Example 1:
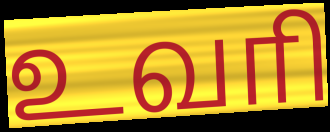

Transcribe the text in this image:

உவரி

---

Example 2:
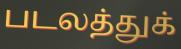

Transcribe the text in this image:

படலத்துக்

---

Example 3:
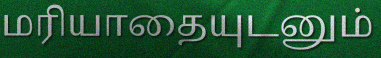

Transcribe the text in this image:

மரியாதையுடனும்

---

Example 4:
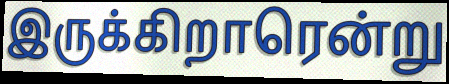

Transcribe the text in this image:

இருக்கிறாரென்று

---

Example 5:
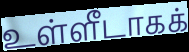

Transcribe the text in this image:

உள்ளீடாகக்